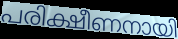
പരിക്ഷീണനായി